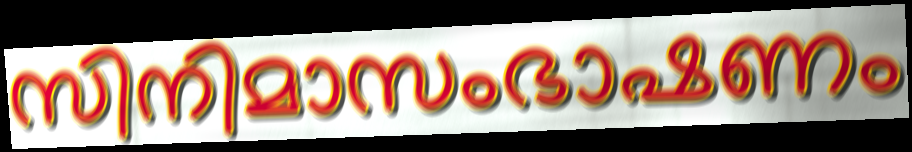
സിനിമാസംഭാഷണം